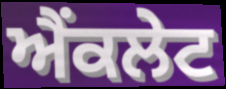
ਐਂਕਲੇਟ